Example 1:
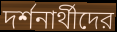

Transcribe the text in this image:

দর্শনার্থীদের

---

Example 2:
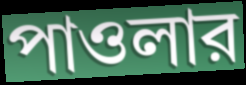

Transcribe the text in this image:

পাওলার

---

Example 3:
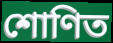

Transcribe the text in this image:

শোণিত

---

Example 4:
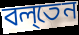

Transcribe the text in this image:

বল্‌তেন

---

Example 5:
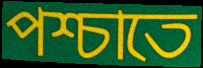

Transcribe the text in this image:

পশ্চাতে